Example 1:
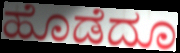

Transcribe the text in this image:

ಹೊಡೆದೂ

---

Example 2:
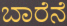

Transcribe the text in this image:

ಬಾರೆನೆ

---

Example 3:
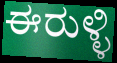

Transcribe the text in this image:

ಈರುಳ್ಳಿ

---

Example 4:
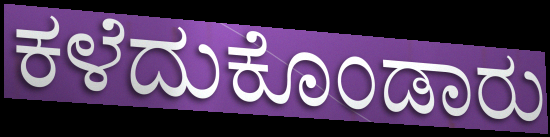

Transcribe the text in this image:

ಕಳೆದುಕೊಂಡಾರು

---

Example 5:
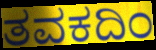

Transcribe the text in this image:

ತವಕದಿಂ